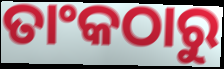
ତାଂକଠାରୁ